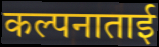
कल्पनाताई